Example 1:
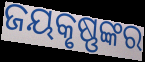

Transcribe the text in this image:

ଜୟକୃଷ୍ଣଙ୍କର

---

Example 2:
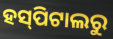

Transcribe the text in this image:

ହସ୍‍ପିଟାଲରୁ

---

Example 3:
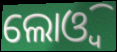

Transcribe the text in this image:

ଲୋଓ୍ବି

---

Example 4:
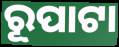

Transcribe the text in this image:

ରୂପାଟା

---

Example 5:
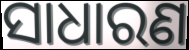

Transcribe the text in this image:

ସାଧାରଣ